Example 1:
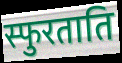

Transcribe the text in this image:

स्फुरताति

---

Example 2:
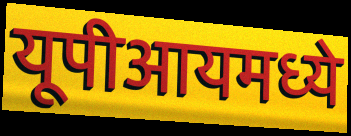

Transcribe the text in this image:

यूपीआयमध्ये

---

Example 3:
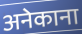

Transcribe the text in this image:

अनेकाना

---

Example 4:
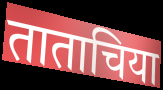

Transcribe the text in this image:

ताताचिया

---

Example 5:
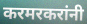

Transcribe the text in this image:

करमरकरांनी